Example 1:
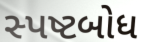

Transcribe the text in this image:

સ્પષ્ટબોધ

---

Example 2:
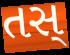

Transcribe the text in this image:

તસ્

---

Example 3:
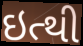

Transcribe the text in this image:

ઇત્થી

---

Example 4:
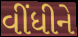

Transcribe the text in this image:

વીંધીને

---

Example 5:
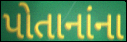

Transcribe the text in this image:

પોતાનાંના